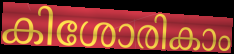
കിശോരികാം